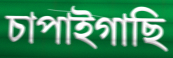
চাপাইগাছি